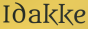
Idakke